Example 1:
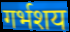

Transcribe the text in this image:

गर्भशय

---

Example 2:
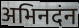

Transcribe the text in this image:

अभिनदंन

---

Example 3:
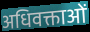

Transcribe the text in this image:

अधिवक्ताओं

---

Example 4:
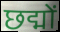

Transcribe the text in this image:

छद्मों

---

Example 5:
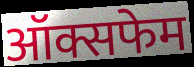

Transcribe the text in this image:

ऑक्सफेम